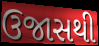
ઉજાસથી